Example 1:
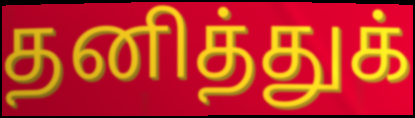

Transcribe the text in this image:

தனித்துக்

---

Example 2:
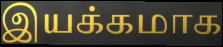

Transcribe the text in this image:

இயக்கமாக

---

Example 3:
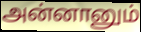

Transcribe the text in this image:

அன்னானும்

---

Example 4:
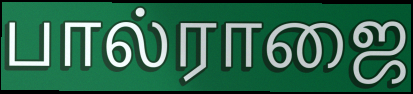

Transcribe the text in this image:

பால்ராஜை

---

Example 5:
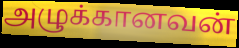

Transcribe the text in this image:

அழுக்கானவன்